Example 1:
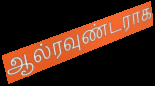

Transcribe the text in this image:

ஆல்ரவுண்டராக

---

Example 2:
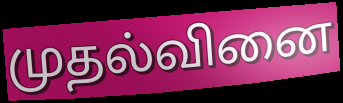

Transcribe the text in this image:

முதல்வினை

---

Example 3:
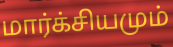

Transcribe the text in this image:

மார்க்சியமும்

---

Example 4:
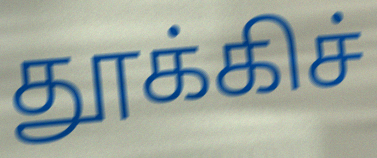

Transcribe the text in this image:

தூக்கிச்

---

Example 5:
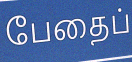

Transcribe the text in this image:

பேதைப்